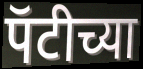
पॅटीच्या